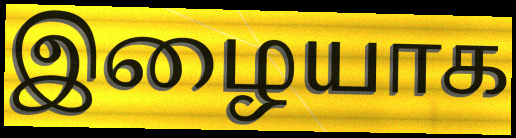
இழையாக